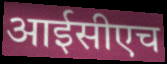
आईसीएच